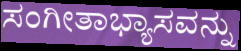
ಸಂಗೀತಾಭ್ಯಾಸವನ್ನು